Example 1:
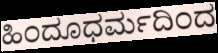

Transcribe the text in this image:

ಹಿಂದೂಧರ್ಮದಿಂದ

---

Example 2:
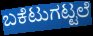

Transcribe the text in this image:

ಬಕೆಟುಗಟ್ಟಲೆ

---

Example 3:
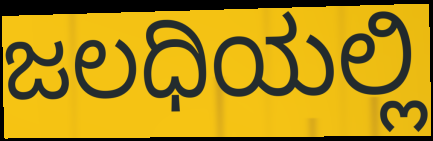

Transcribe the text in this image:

ಜಲಧಿಯಲ್ಲಿ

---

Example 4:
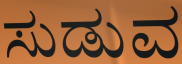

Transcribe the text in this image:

ಸುಡುವ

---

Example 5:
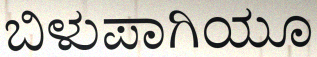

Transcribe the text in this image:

ಬಿಳುಪಾಗಿಯೂ